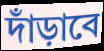
দাঁড়াবে